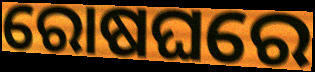
ରୋଷଘରେ